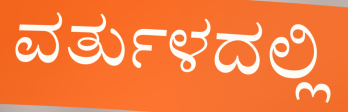
ವರ್ತುಳದಲ್ಲಿ